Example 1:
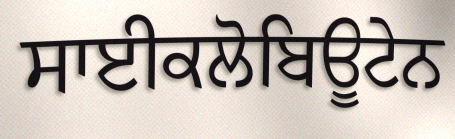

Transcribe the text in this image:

ਸਾਈਕਲੋਬਿਊਟੇਨ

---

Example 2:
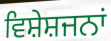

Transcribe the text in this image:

ਵਿਸ਼ੇਸ਼ਜਨਾਂ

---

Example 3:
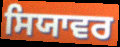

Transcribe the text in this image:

ਸਿਯਾਵਰ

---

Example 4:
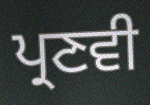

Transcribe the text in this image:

ਪ੍ਰਣਵੀ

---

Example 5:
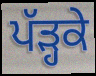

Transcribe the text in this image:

ਪੱੜ੍ਹਕੇ